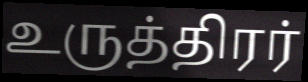
உருத்திரர்